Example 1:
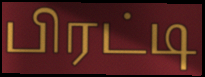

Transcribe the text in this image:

பிரட்டி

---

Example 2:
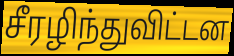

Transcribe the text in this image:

சீரழிந்துவிட்டன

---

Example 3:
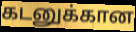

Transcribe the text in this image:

கடனுக்கான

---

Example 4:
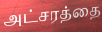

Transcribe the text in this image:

அட்சரத்தை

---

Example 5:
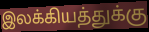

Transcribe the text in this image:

இலக்கியத்துக்கு